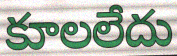
కూలలేదు